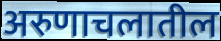
अरुणाचलातील